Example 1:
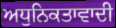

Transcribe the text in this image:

ਅਧੁਨਿਕਤਾਵਾਦੀ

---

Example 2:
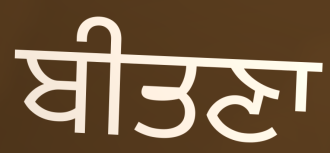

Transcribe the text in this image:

ਬੀਤਣਾ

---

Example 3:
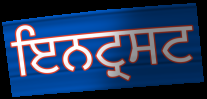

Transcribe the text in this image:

ਇਨਟ੍ਰਸਟ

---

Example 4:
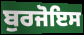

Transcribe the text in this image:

ਬੁਰਜੋਇਸ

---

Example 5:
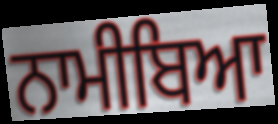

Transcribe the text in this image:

ਨਾਮੀਬਿਆ